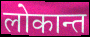
लोकान्त